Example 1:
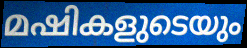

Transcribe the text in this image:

മഷികളുടെയും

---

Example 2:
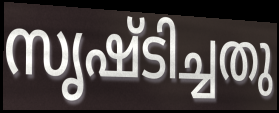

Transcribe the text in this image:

സൃഷ്ടിച്ചതു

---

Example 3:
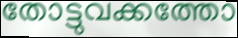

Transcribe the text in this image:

തോട്ടുവക്കത്തോ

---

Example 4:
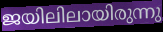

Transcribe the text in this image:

ജയിലിലായിരുന്നു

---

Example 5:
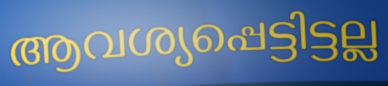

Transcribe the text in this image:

ആവശ്യപ്പെട്ടിട്ടല്ല